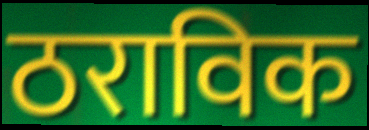
ठराविक